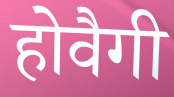
होवैगी